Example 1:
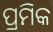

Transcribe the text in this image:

ପ୍ରମିକ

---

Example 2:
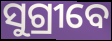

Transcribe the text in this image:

ସୁଗ୍ରୀବେ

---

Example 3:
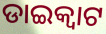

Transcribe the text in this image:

ଡାଇକ୍ଵାଟ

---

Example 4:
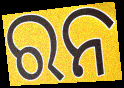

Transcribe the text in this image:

ରନ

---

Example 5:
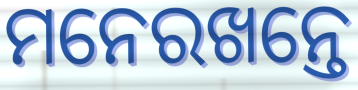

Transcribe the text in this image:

ମନେରଖନ୍ତେ